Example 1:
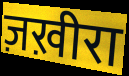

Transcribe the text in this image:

ज़ख़ीरा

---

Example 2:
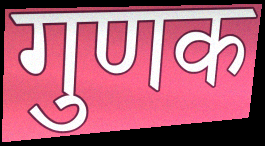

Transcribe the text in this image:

गुणक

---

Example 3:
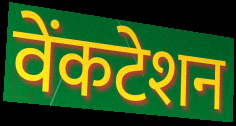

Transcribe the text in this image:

वेंकटेशन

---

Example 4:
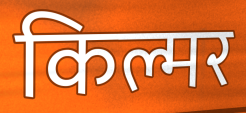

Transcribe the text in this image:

किल्मर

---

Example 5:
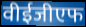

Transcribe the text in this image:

वीईजीएफ